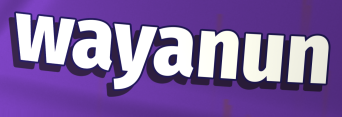
wayanun